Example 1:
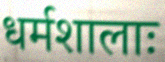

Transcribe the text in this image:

धर्मशालाः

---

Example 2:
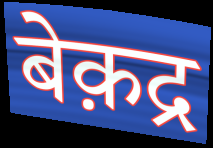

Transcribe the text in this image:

बेक़द्र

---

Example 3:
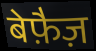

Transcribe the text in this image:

बेफ़ैज़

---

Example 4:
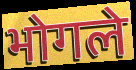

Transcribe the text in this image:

भोगले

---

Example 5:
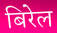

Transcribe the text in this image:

बिरेल